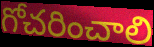
గోచరించాలి